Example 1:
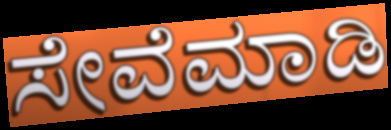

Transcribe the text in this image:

ಸೇವೆಮಾಡಿ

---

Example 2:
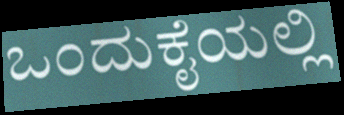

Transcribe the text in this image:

ಒಂದುಕೈಯಲ್ಲಿ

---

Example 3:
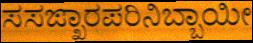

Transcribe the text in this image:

ಸಸಙ್ಖಾರಪರಿನಿಬ್ಬಾಯೀ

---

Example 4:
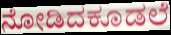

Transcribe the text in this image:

ನೋಡಿದಕೂಡಲೆ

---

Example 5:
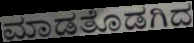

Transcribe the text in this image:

ಮಾಡತೊಡಗಿದ